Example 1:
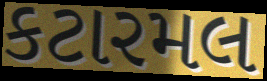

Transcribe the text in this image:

કટારમલ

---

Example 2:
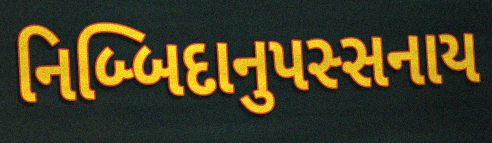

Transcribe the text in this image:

નિબ્બિદાનુપસ્સનાય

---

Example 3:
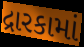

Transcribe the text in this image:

દ્રારકામાં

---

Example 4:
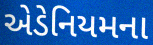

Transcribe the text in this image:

એડેનિયમના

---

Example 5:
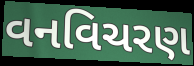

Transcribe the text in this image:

વનવિચરણ